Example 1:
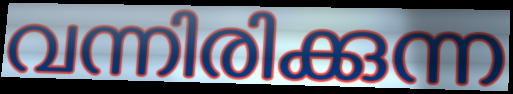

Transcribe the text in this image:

വന്നിരിക്കുന്ന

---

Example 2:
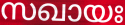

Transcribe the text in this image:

സഖായഃ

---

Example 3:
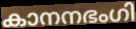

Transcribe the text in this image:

കാനനഭംഗി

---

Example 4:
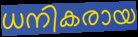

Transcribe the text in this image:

ധനികരായ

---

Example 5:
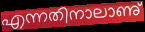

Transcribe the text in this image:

എന്നതിനാലാണു്